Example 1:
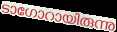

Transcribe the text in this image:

ടാഗോറായിരുന്നു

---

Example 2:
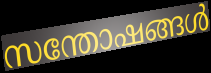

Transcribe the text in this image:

സന്തോഷങ്ങൾ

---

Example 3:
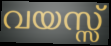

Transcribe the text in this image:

വയസ്സ്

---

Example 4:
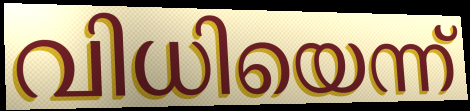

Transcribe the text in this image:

വിധിയെന്ന്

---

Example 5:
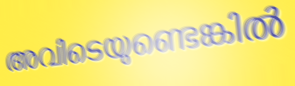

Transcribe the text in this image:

അവിടെയുണ്ടെങ്കിൽ